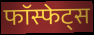
फॉस्फेट्स